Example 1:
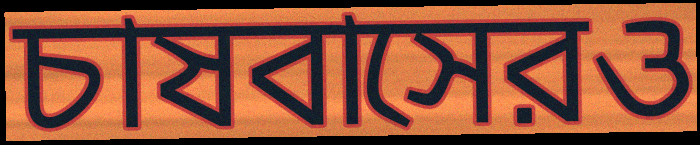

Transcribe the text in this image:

চাষবাসেরও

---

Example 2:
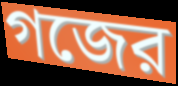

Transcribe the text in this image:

গজের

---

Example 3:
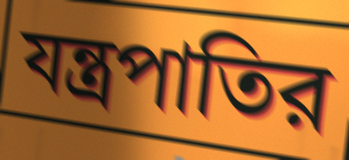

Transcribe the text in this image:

যন্ত্রপাতির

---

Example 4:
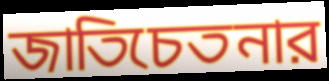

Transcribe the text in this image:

জাতিচেতনার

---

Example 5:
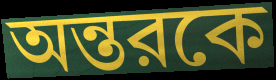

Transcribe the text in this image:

অন্তরকে